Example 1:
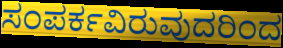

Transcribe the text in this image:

ಸಂಪರ್ಕವಿರುವುದರಿಂದ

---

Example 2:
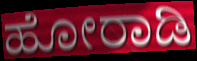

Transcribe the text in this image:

ಹೋರಾಡಿ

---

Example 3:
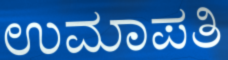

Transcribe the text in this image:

ಉಮಾಪತಿ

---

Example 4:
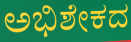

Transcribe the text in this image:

ಅಭಿಶೇಕದ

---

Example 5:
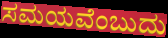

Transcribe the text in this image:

ಸಮಯವೆಂಬುದು